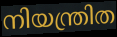
നിയന്ത്രിത